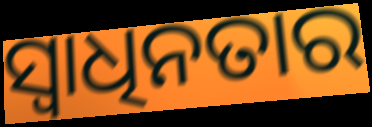
ସ୍ୱାଧିନତାର